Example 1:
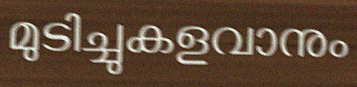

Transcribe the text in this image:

മുടിച്ചുകളവാനും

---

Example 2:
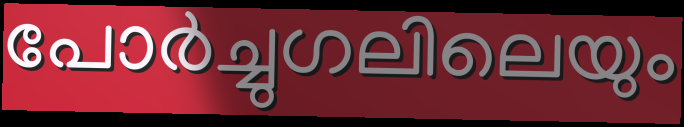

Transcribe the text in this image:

പോർച്ചുഗലിലെയും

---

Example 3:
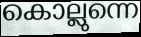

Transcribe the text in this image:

കൊല്ലുന്നെ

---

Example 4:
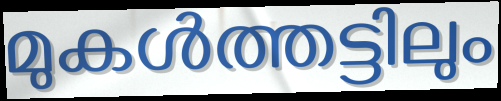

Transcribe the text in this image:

മുകൾത്തട്ടിലും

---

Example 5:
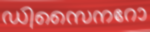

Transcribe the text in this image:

ഡിസൈനറോ